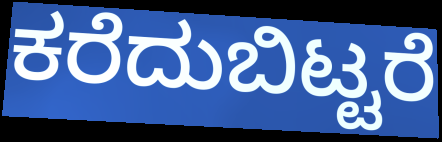
ಕರೆದುಬಿಟ್ಟರೆ